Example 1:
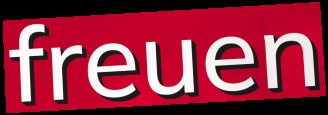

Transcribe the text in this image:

freuen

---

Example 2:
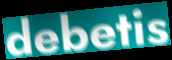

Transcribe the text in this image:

debetis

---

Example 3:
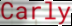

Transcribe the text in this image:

Carly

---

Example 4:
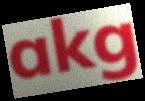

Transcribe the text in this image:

akg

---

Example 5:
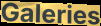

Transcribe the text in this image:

Galeries